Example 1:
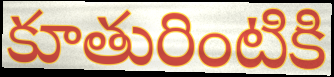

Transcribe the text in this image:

కూతురింటికి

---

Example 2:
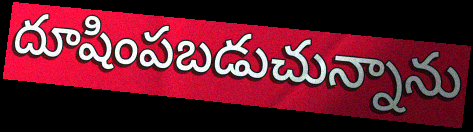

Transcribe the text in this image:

దూషింపబడుచున్నాను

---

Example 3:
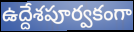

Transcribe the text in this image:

ఉద్దేశపూర్వకంగా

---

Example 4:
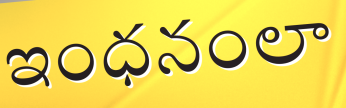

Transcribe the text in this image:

ఇంధనంలా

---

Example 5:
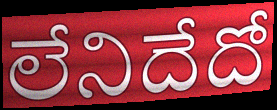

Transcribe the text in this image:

లేనిదేదో